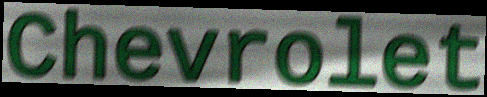
Chevrolet